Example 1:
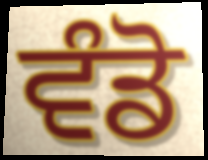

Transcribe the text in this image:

ਵੰਡੋ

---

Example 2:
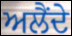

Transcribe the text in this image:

ਅਲੈਂਦੇ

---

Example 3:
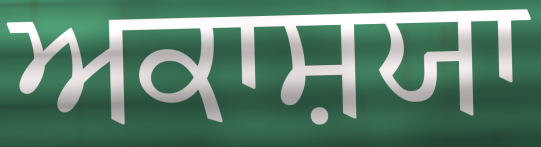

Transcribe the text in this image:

ਅਕਾਸ਼ਯਾ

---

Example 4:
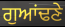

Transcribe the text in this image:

ਗੁਆਂਢਣੇ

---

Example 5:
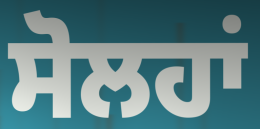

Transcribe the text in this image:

ਸੋਲਹਾਂ